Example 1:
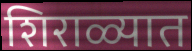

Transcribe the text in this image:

शिराळ्यात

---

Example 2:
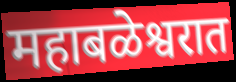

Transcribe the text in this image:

महाबळेश्वरात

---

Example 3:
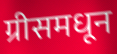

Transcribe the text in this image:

ग्रीसमधून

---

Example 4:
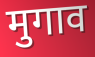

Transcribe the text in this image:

मुगाव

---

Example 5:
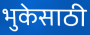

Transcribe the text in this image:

भुकेसाठी